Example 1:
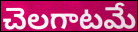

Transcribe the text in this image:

చెలగాటమే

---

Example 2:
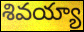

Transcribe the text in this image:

శివయ్యా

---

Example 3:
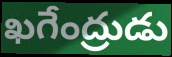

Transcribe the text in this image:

ఖగేంద్రుడు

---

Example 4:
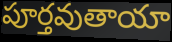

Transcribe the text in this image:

పూర్తవుతాయా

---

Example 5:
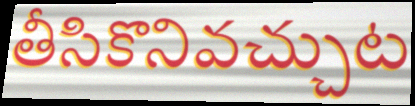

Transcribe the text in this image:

తీసికొనివచ్చుట